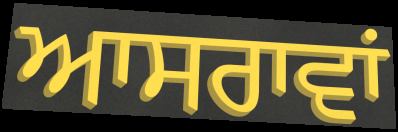
ਆਸਰਾਵਾਂ